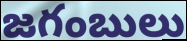
జగంబులు